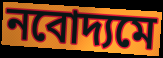
নবোদ্যমে